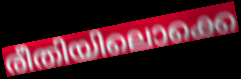
രീതിയിലൊക്കെ